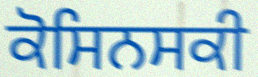
ਕੋਸਿਨਸਕੀ